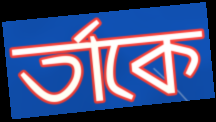
র্তাকে